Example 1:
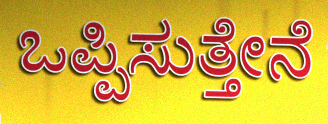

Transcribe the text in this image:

ಒಪ್ಪಿಸುತ್ತೇನೆ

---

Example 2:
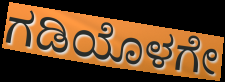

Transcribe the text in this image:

ಗಡಿಯೊಳಗೇ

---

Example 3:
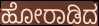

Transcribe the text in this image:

ಹೋರಾಡಿದ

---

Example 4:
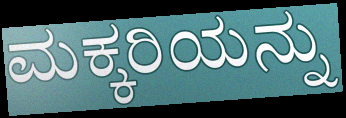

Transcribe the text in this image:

ಮಕ್ಕರಿಯನ್ನು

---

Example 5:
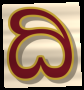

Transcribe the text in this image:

ದಿ